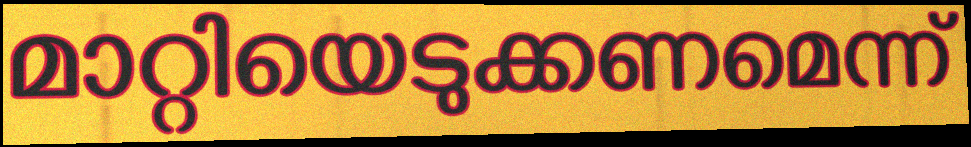
മാറ്റിയെടുക്കണമെന്ന്